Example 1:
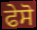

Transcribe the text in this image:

ਫੇਸੋ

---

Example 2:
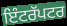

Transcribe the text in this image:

ਇੰਟਰੱਪਟਰ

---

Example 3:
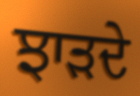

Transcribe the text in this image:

ਝਾੜਦੇ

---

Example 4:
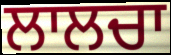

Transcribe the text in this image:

ਲਾਲਚਾ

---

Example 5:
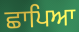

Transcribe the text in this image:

ਛਾਪਿਆ